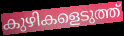
കുഴികളെടുത്ത്